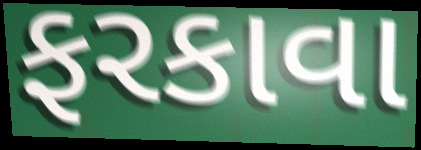
ફરકાવા